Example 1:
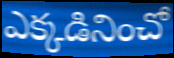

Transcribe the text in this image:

ఎక్కడినించో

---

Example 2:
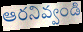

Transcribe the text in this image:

ఆరనివ్వండి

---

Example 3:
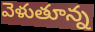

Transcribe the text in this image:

వెళుతూన్న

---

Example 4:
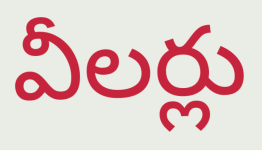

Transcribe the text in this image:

వీలర్లు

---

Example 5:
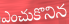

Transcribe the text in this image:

ఎంచుకొనిన